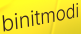
binitmodi